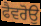
ਫੈਵਰੋਉ